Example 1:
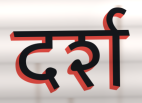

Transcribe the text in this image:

दर्श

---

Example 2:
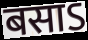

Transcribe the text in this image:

बसाऽ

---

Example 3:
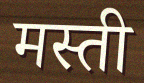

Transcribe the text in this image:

मस्ती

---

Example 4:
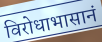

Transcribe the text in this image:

विरोधाभासानं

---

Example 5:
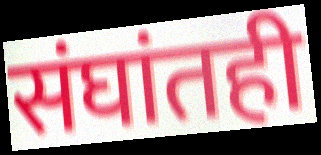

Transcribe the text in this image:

संघांतही